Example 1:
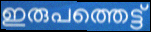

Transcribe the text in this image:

ഇരുപത്തെട്ട്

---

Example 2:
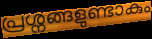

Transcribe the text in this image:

പ്രശ്നങ്ങളുണ്ടാകും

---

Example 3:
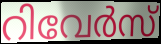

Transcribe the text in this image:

റിവേർസ്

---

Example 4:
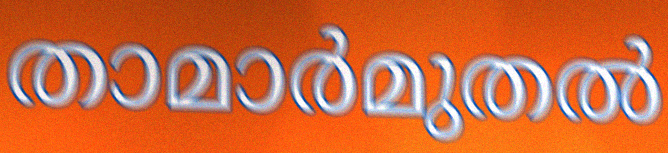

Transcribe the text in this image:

താമാർമുതൽ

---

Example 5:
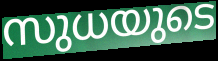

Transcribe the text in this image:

സുധയുടെ